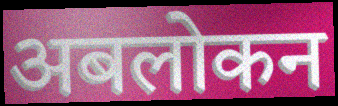
अबलोकन